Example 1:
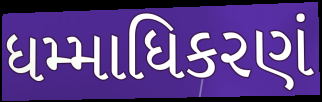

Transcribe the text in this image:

ધમ્માધિકરણં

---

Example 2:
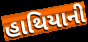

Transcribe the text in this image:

હાથિયાની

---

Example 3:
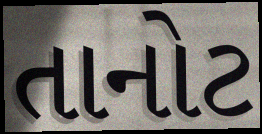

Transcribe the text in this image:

તાનોટ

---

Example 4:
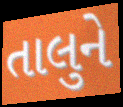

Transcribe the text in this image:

તાલુને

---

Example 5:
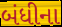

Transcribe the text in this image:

બંધીના